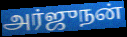
அர்ஜுநன்